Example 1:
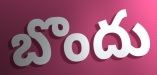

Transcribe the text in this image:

బొందు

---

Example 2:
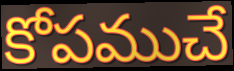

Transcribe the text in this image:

కోపముచే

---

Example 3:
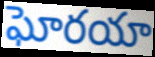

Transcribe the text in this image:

ఘోరయా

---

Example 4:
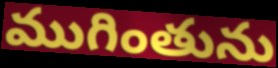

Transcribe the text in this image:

ముగింతును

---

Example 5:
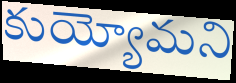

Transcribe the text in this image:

కుయ్యోమని